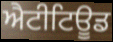
ਐਟੀਟਿਊਡ